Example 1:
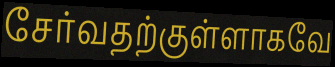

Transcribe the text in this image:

சேர்வதற்குள்ளாகவே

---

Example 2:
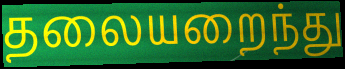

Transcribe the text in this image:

தலையறைந்து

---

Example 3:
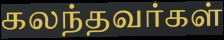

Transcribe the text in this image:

கலந்தவர்கள்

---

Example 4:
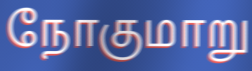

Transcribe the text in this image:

நோகுமாறு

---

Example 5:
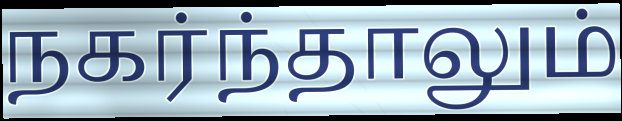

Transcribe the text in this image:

நகர்ந்தாலும்